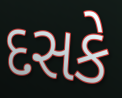
દસકે